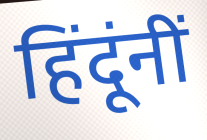
हिंदूंनीं